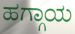
ಹಗ್ಗಾಯ